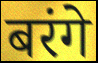
बरंगे